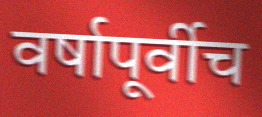
वर्षापूर्वीच